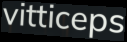
vitticeps